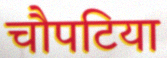
चौपटिया